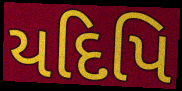
યદિપિ